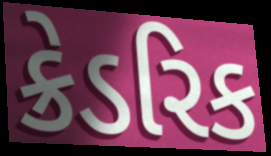
ક્રેડરિક